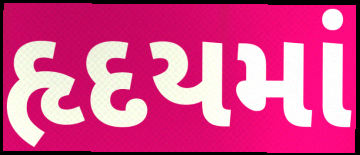
હૃદયમાં